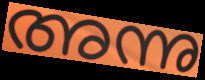
അന്നു